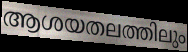
ആശയതലത്തിലും